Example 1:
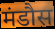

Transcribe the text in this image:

मंडौस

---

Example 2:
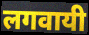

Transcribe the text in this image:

लगवायी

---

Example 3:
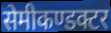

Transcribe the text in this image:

सेमीकण्डक्टर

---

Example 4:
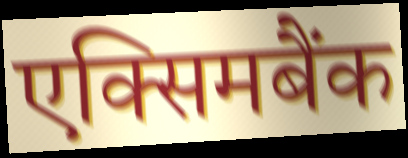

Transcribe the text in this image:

एक्सिमबैंक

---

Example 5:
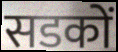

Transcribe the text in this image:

सडकों